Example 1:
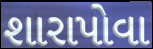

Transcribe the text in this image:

શારાપોવા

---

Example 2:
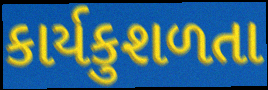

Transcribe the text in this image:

કાર્યકુશળતા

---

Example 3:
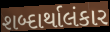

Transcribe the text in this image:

શબ્દાર્થાલંકાર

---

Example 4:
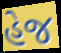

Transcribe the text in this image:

હેજ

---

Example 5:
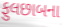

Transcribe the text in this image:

ફુલછાબના